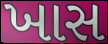
ખાસ